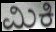
ಮಿಕಿ